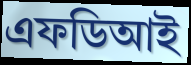
এফডিআই